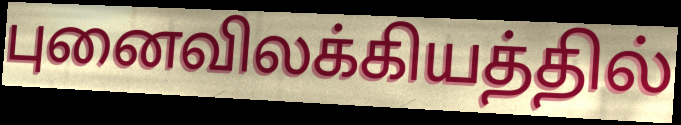
புனைவிலக்கியத்தில்